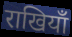
राखियाँ